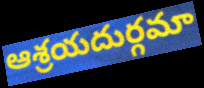
ఆశ్రయదుర్గమా